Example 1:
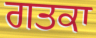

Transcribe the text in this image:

ਗਤਕਾ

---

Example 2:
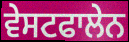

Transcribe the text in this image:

ਵੇਸਟਫਾਲੇਨ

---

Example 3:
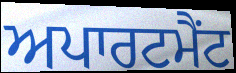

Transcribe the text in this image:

ਅਪਾਰਟਮੈਂਟ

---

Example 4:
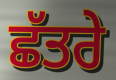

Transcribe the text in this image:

ਛੱਤਰੇ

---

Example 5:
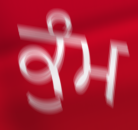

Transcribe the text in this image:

ਕੁੰਮ